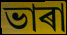
ভাৰা